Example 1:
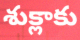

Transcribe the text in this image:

శుక్లాకు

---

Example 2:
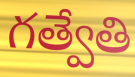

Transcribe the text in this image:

గత్వేతి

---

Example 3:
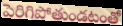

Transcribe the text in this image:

పెరిగిపోతుండటంతో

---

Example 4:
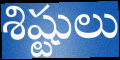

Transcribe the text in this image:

శిష్టులు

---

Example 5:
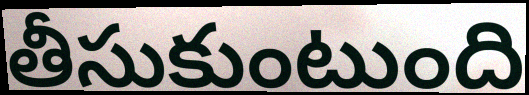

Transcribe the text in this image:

తీసుకుంటుంది